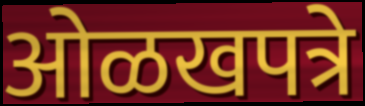
ओळखपत्रे